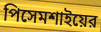
পিসেমশাইয়ের